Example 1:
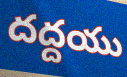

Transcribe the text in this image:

దద్దయు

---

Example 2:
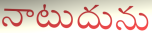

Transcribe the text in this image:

నాటుదును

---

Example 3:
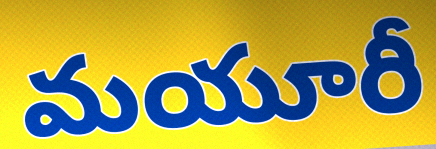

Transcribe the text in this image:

మయూరీ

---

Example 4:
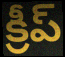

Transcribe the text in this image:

క్రీప్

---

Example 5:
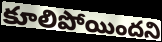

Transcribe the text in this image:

కూలిపోయిందని